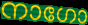
നാഗോ